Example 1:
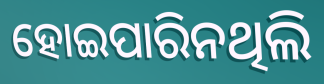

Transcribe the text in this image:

ହୋଇପାରିନଥିଲି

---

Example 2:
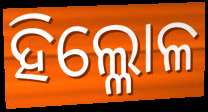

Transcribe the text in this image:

ହିଲ୍ଳୋଳ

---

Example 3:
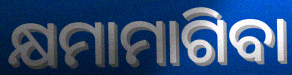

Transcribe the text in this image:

କ୍ଷମାମାଗିବା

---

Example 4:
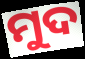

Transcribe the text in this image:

ମୁଦ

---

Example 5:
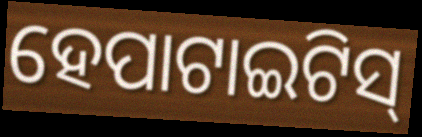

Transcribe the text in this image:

ହେପାଟାଇଟିସ୍